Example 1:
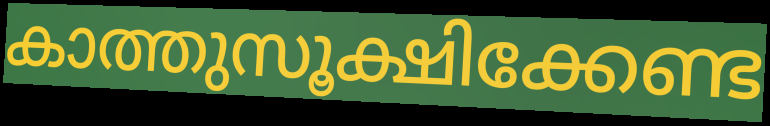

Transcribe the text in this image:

കാത്തുസൂക്ഷിക്കേണ്ട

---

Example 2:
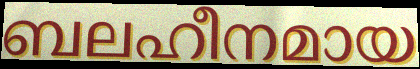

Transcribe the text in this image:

ബലഹീനമായ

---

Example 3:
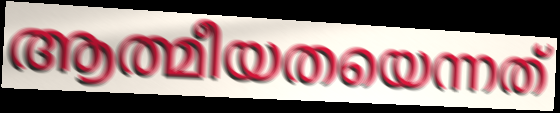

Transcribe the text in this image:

ആത്മീയതയെന്നത്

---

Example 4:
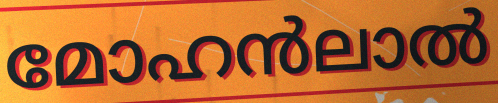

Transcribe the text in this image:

മോഹൻലാൽ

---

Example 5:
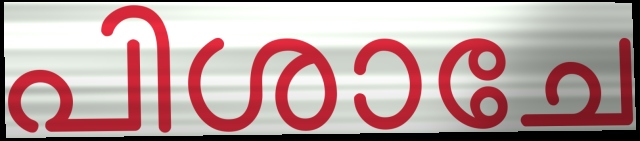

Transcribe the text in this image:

പിശാചേ